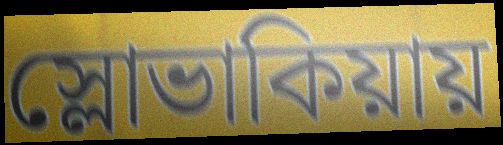
স্লোভাকিয়ায়